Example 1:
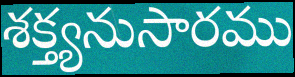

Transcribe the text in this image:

శక్త్యనుసారము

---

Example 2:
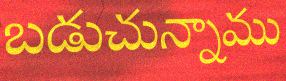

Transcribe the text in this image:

బడుచున్నాము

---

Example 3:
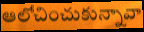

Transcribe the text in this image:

ఆలోచించుకున్నావా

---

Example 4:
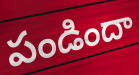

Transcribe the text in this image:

పండిందా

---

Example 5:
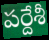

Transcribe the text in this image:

పర్దేశీ